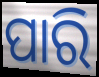
ପାରି